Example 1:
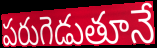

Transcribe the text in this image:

పరుగెడుతూనే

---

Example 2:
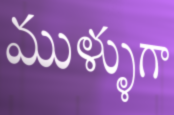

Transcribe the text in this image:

ముళ్ళుగా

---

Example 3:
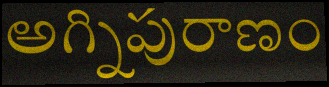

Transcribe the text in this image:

అగ్నిపురాణం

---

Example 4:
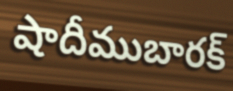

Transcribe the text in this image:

షాదీముబారక్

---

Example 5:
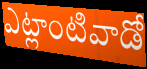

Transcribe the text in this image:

ఎట్లాంటివాడో